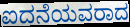
ಐದನೆಯವರಾದ